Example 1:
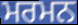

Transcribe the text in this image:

ਮਰਮਨ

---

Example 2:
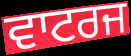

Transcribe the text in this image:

ਵਾਟਰਜ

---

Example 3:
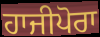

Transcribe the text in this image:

ਹਾਜੀਪੋਰਾ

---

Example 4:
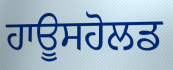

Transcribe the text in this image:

ਹਾਊਸਹੋਲਡ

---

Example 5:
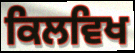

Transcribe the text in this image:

ਕਿਲਵਿਖ